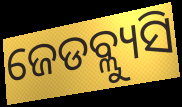
ଜେଡବ୍ଲ୍ୟୁସି